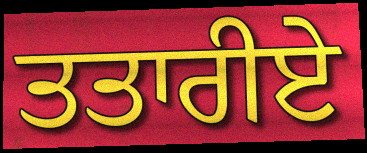
ਤਤਾਰੀਏ